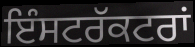
ਇੰਸਟਰੱਕਟਰਾਂ